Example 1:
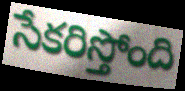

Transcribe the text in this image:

సేకరిస్తోంది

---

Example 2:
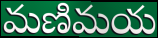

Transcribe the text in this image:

మణిమయ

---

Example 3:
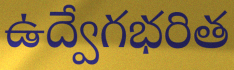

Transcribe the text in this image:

ఉద్వేగభరిత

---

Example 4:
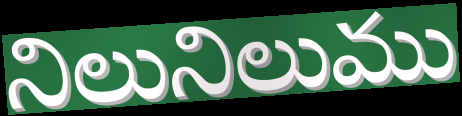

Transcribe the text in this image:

నిలునిలుము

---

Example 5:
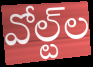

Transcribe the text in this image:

వోల్ట్‌ల